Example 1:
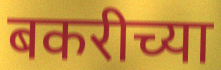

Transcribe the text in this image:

बकरीच्या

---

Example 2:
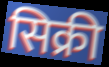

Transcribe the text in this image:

सिक्री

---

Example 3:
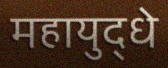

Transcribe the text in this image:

महायुद्धे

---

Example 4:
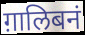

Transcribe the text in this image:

ग़ालिबनं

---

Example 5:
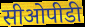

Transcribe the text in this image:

सीओपीडी